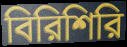
বিরিশিরি